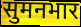
सुमनभार